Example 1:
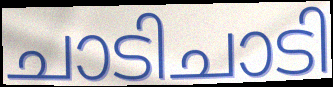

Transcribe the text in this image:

ചാടിചാടി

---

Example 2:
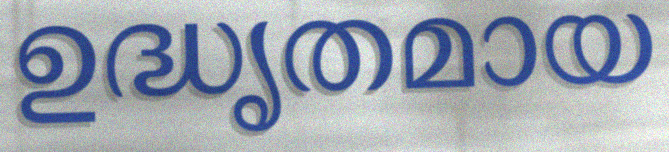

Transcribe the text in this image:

ഉദ്ധൃതമായ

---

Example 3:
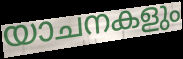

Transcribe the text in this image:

യാചനകളും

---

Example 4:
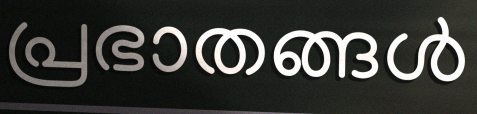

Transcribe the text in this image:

പ്രഭാതങ്ങൾ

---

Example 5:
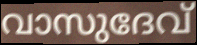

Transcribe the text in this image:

വാസുദേവ്